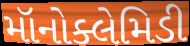
મૉનોક્લેમિડી